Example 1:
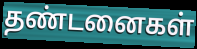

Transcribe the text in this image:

தண்டனைகள்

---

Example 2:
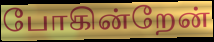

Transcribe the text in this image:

போகின்றேன்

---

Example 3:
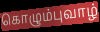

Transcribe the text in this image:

கொழும்புவாழ்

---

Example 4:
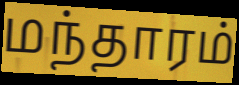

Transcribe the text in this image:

மந்தாரம்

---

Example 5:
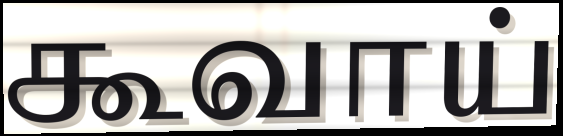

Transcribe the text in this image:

கூவாய்